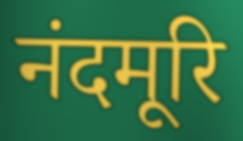
नंदमूरि